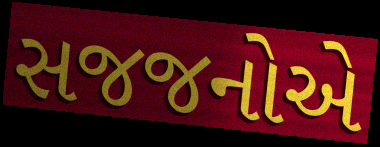
સજજનોએ